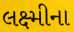
લક્ષ્મીના